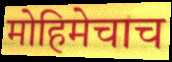
मोहिमेचाच